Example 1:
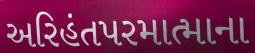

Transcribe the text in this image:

અરિહંતપરમાત્માના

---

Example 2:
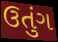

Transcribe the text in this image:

ઉતુંગ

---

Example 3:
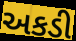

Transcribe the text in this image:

અકડી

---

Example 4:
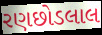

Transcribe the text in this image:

રણછોડલાલ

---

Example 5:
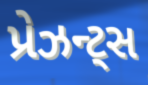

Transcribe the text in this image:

પ્રેઝન્ટ્સ